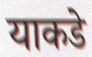
याकडे